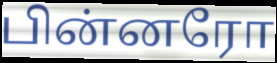
பின்னரோ